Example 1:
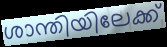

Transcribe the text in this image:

ശാന്തിയിലേക്ക്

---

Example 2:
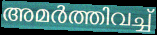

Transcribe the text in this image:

അമർത്തിവച്ച്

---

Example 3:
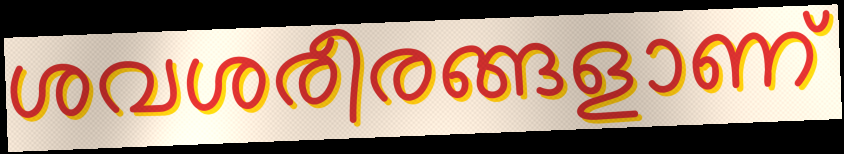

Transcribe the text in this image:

ശവശരീരങ്ങളാണ്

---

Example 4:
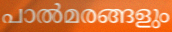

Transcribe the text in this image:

പാൽമരങ്ങളും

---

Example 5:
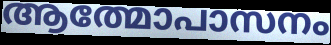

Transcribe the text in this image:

ആത്മോപാസനം